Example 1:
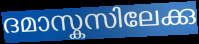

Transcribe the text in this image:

ദമാസ്കസിലേക്കു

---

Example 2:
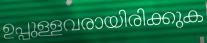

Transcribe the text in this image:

ഉപ്പുള്ളവരായിരിക്കുക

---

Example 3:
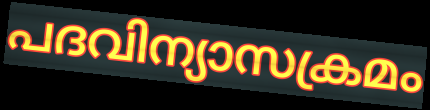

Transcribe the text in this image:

പദവിന്യാസക്രമം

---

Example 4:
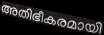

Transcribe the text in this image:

അതിഭീകരമായി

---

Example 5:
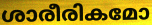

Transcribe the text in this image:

ശാരീരികമോ